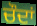
ਚੌਦਾਂ